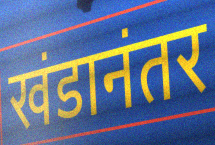
खंडानंतर